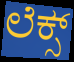
ಲೆಕ್ಸ್